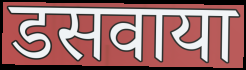
डसवाया